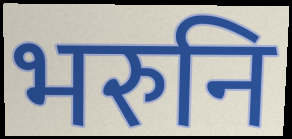
भरुनि